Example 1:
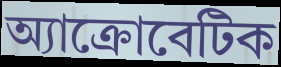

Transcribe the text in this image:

অ্যাক্রোবেটিক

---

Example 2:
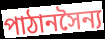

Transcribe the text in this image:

পাঠানসৈন্য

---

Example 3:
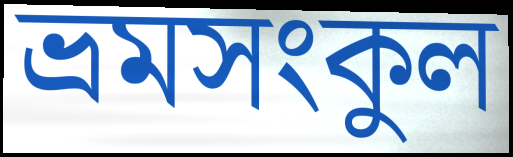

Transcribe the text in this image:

ভ্রমসংকুল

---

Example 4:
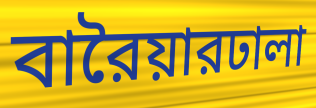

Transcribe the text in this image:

বারৈয়ারঢালা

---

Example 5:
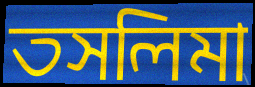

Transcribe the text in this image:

তসলিমা